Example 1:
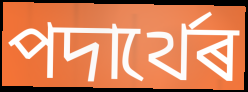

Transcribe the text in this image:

পদাৰ্থেৰ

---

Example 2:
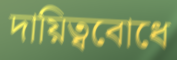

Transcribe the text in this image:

দায়িত্ববোধে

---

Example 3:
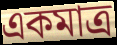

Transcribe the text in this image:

একমাত্ৰ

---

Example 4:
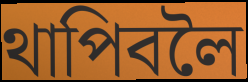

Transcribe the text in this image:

থাপিবলৈ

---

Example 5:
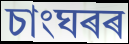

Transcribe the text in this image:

চাংঘৰৰ